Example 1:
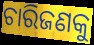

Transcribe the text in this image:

ଚାରିଜଣକୁ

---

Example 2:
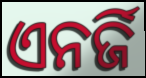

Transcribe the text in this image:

ଏନର୍ଜି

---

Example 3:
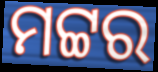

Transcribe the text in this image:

ମଟ୍ଟର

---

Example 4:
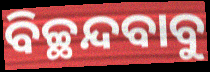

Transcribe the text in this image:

ବିଚ୍ଛନ୍ଦବାବୁ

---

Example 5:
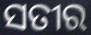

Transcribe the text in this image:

ସତୀର